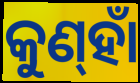
କୁଣ୍‌ହାଁ